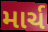
માર્ચ